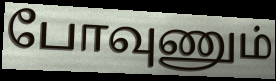
போவுணும்